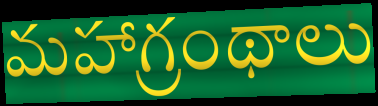
మహాగ్రంథాలు